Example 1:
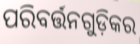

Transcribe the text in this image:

ପରିବର୍ତ୍ତନଗୁଡ଼ିକର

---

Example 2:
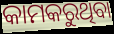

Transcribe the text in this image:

କାମକରୁଥିବା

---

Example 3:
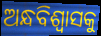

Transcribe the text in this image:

ଅନ୍ଧବିଶ୍ୱାସକୁ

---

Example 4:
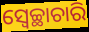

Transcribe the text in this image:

ସ୍ଵେଚ୍ଛାଚାରି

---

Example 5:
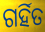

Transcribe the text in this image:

ଗର୍ହିତ